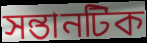
সন্তানটিক